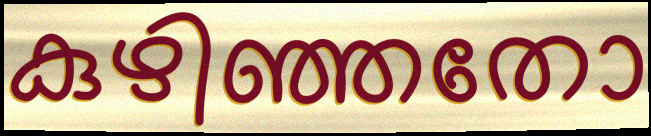
കുഴിഞ്ഞതോ